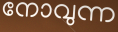
നോവുന്ന